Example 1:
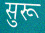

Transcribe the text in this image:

सुरू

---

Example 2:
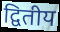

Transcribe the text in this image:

द्वितीय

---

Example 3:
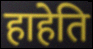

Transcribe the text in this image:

हाहेति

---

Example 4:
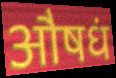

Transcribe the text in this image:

औषधं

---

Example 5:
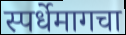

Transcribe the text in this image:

स्पर्धेमागचा